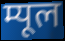
म्यूल